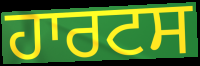
ਹਾਰਟਸ